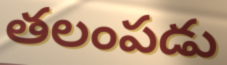
తలంపడు